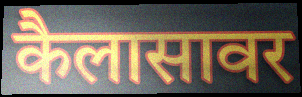
कैलासावर